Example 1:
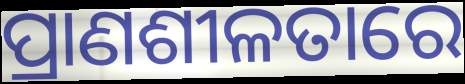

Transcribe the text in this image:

ପ୍ରାଣଶୀଳତାରେ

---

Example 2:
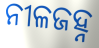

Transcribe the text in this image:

ନୀଳଜହ୍ନ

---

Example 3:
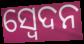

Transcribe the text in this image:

ସ୍ଵେଦନ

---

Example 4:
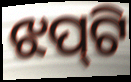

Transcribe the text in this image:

ଝପ୍‌ଟି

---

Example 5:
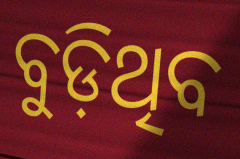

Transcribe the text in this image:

ବୁଡ଼ିଥିବ